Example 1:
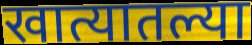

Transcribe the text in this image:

खात्यातल्या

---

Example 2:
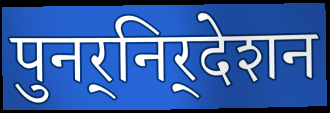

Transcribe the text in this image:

पुनर्निर्देशन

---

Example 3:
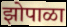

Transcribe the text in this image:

झोपाळा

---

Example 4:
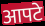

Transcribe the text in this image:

आपटे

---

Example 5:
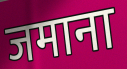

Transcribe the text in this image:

जमाना